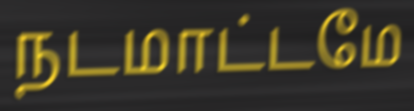
நடமாட்டமே